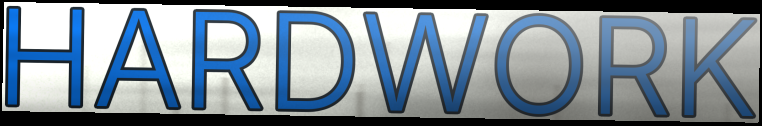
HARDWORK